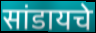
सांडायचे